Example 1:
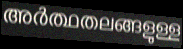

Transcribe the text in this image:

അർത്ഥതലങ്ങളുള്ള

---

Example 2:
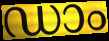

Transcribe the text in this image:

ഡാം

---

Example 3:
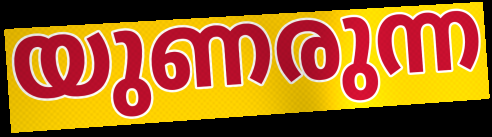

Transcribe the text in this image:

യുണരുന്ന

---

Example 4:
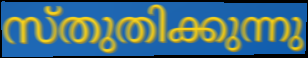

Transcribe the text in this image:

സ്തുതിക്കുന്നു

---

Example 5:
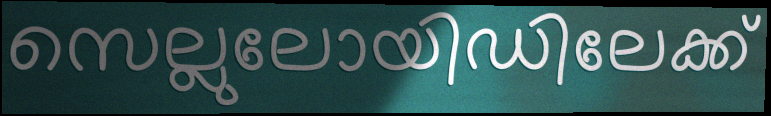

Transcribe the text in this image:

സെല്ലുലോയിഡിലേക്ക്